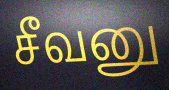
சீவனு